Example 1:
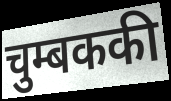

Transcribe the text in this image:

चुम्बककी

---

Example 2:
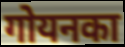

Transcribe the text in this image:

गोयनका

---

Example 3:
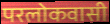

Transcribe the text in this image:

परलोकवासी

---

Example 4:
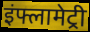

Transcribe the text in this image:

इंफ्लामेट्री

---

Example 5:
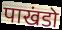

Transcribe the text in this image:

पाखंडो